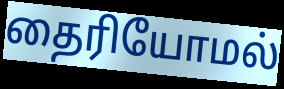
தைரியோமல்